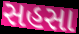
સહસા